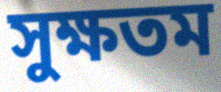
সুক্ষতম